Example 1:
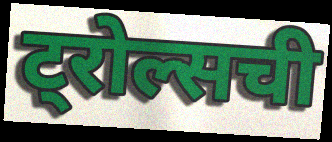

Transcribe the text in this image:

ट्रोल्सची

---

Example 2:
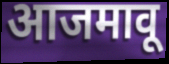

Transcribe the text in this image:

आजमावू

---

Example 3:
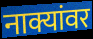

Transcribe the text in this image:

नाक्यांवर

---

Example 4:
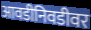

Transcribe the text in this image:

आवडीनिवडीवर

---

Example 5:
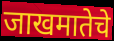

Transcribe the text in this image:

जाखमातेचे